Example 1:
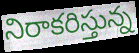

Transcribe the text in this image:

నిరాకరిస్తున్న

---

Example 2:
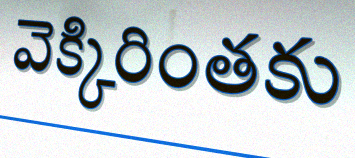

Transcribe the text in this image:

వెక్కిరింతకు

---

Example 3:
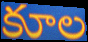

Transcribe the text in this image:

కూల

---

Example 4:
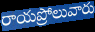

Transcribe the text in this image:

రాయప్రోలువారు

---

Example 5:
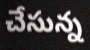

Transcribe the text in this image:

చేసున్న